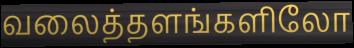
வலைத்தளங்களிலோ